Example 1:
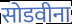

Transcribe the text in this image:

सोडवीना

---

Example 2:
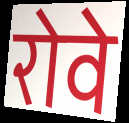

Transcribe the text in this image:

रोवे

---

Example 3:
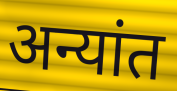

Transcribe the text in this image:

अन्यांत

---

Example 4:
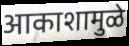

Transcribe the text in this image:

आकाशामुळे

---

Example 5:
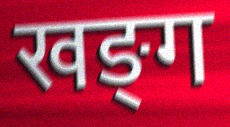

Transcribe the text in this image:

खङ्ग